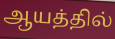
ஆயத்தில்